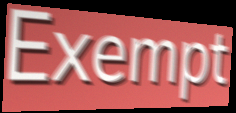
Exempt